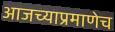
आजच्याप्रमाणेच